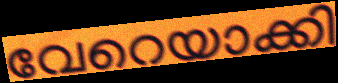
വേറെയാക്കി